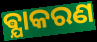
ଵ୍ଯାକରଣ